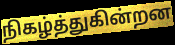
நிகழ்த்துகின்றன